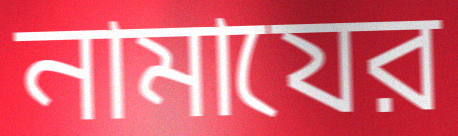
নামাযের